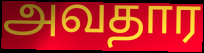
அவதார